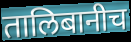
तालिबानीच